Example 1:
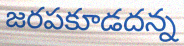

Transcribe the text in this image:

జరపకూడదన్న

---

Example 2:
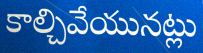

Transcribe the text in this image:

కాల్చివేయునట్లు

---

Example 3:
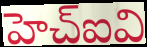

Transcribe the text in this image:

హెచ్ఐవి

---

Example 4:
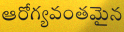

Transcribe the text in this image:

ఆరోగ్యవంతమైన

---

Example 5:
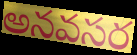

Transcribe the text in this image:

అనవసర